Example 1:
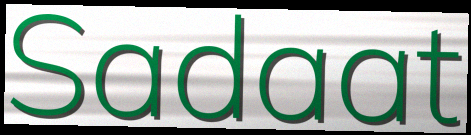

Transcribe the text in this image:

Sadaat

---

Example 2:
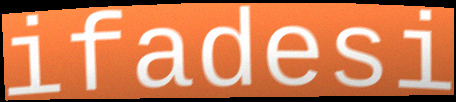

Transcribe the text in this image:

ifadesi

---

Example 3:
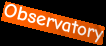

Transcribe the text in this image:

Observatory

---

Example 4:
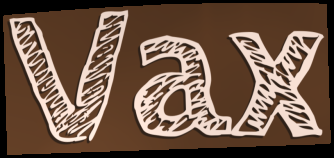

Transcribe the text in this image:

Vax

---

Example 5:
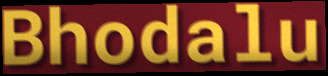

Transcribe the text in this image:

Bhodalu